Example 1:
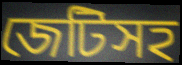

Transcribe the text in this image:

জেটিসহ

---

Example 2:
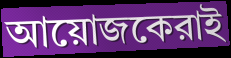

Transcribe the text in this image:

আয়োজকেরাই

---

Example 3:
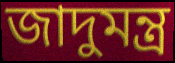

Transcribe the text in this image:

জাদুমন্ত্র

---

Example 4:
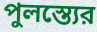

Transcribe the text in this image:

পুলস্ত্যের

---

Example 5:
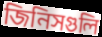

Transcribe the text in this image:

জিনিসগুলি